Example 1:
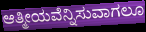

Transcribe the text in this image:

ಆತ್ಮೀಯವೆನ್ನಿಸುವಾಗಲೂ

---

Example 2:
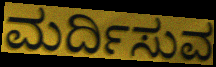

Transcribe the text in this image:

ಮರ್ದಿಸುವ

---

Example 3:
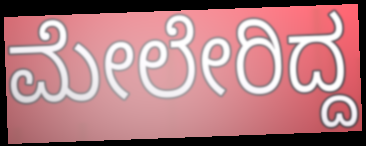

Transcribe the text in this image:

ಮೇಲೇರಿದ್ದ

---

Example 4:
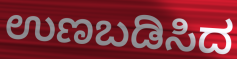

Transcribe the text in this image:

ಉಣಬಡಿಸಿದ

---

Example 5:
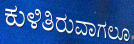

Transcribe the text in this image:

ಕುಳಿತಿರುವಾಗಲೂ